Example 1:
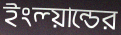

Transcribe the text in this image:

ইংল্য়ান্ডের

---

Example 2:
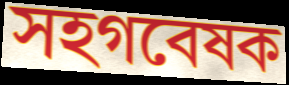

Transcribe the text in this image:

সহগবেষক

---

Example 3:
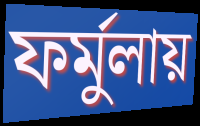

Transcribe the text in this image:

ফর্মুলায়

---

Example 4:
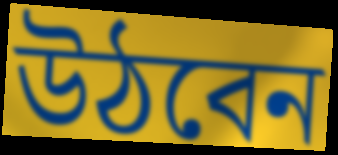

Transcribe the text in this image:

উঠবেন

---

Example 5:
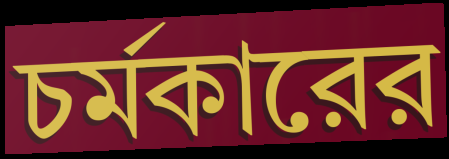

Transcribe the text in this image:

চর্মকারের